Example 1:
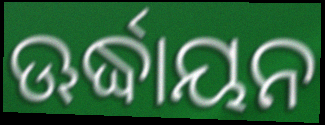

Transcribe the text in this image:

ଊର୍ଦ୍ଧାୟନ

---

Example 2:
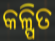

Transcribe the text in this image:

କଳ୍ପିତ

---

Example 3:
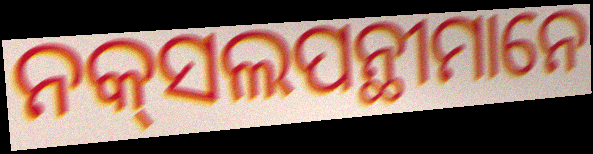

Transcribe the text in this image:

ନକ୍‌ସଲପନ୍ଥୀମାନେ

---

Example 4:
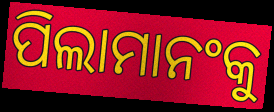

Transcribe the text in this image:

ପିଲାମାନଂକୁ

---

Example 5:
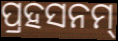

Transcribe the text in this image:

ପ୍ରହସନମ୍